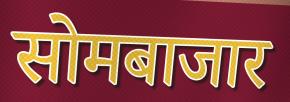
सोमबाजार